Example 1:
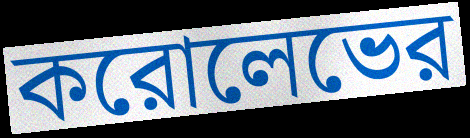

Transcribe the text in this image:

করোলেভের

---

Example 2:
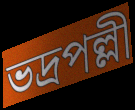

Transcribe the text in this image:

ভদ্রপল্লী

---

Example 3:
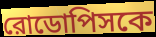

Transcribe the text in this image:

রোডোপিসকে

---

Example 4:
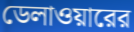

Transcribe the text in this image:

ডেলাওয়ারের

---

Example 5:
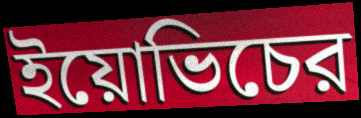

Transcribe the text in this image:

ইয়োভিচের